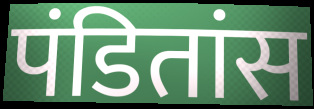
पंडितांस